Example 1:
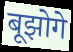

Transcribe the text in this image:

बूझोगे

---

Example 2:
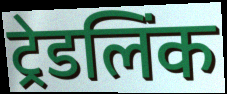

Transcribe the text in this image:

ट्रेडलिंक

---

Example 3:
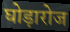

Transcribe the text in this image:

घोड़ारोज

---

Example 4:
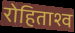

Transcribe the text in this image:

रोहिताश्व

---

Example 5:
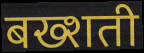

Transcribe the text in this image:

बख्शती